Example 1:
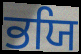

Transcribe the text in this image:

ਭਯਿ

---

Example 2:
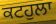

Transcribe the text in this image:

ਕਟਹੁਲਾ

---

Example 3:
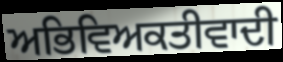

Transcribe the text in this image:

ਅਭਿਵਿਅਕਤੀਵਾਦੀ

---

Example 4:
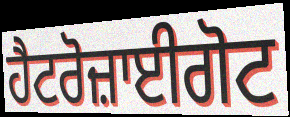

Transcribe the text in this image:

ਹੈਟਰੋਜ਼ਾਈਗੋਟ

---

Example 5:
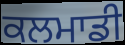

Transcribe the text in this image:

ਕਲਮਾਡੀ